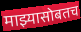
माझ्यासोबतच